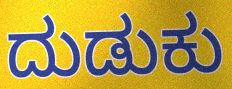
ದುಡುಕು